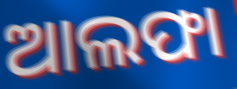
ଆଲଫା